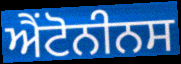
ਐਂਟੋਨੀਨਸ